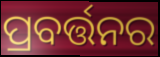
ପ୍ରବର୍ତ୍ତନର